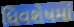
ધિવશેષમાં